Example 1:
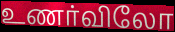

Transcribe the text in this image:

உணர்விலோ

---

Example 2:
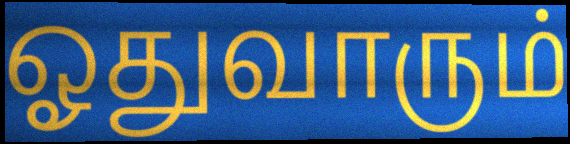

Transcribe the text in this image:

ஓதுவாரும்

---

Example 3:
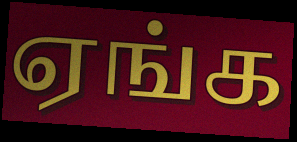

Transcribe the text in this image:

ஏங்க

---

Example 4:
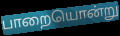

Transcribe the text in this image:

பாறையொன்று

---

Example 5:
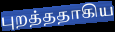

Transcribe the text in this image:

புறத்ததாகிய